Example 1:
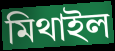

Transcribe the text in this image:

মিথাইল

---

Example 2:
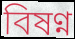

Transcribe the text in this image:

বিষণ্ন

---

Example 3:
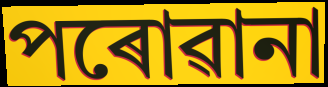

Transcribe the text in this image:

পৰোৱানা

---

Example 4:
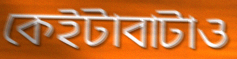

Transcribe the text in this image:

কেইটাবাটাও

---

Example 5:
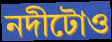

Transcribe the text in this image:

নদীটোও